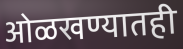
ओळखण्यातही